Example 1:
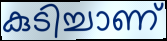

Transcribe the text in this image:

കുടിച്ചാണ്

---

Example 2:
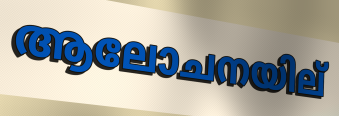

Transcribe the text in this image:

ആലോചനയില്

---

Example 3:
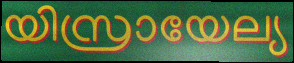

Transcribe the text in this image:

യിസ്രായേല്യ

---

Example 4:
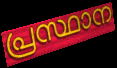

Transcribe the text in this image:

പ്രസ്ഥാന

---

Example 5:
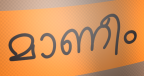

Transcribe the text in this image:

മാണീം